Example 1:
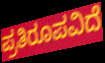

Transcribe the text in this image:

ಪ್ರತಿರೂಪವಿದೆ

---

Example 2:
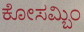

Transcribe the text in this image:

ಕೋಸಮ್ಬಿಂ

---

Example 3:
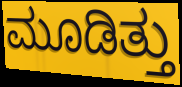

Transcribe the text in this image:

ಮೂಡಿತ್ತು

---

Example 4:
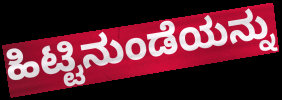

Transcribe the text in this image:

ಹಿಟ್ಟಿನುಂಡೆಯನ್ನು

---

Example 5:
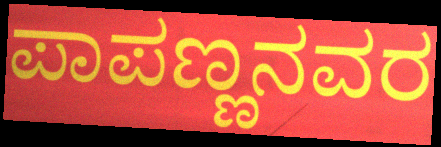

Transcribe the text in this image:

ಪಾಪಣ್ಣನವರ